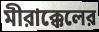
মীরাক্কেলের